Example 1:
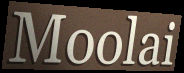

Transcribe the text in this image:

Moolai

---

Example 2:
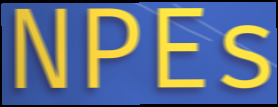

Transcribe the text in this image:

NPEs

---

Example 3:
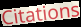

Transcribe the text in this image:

Citations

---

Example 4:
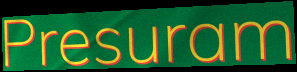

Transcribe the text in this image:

Presuram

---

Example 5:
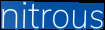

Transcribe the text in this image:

nitrous